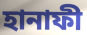
হানাফী